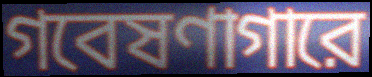
গবেষণাগারে